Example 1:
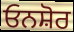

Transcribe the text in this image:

ਓਨਸ਼ੋਰ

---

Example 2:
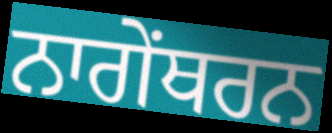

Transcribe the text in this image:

ਨਾਗੇਂਥਰਨ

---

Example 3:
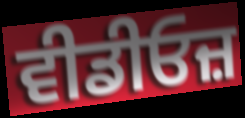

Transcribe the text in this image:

ਵੀਡੀਓਜ਼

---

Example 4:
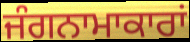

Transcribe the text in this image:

ਜੰਗਨਾਮਾਕਾਰਾਂ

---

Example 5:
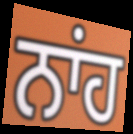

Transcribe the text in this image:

ਨਾਂਹ